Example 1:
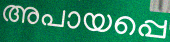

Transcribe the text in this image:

അപായപ്പെ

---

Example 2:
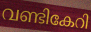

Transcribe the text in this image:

വണ്ടികേറി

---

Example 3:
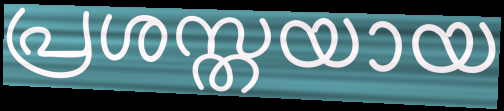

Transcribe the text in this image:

പ്രശസ്തയായ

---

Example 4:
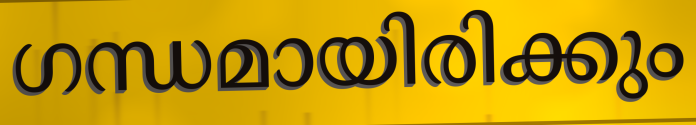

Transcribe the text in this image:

ഗന്ധമായിരിക്കും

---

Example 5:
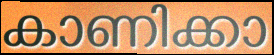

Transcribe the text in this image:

കാണിക്കാ